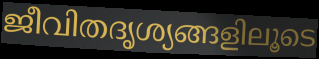
ജീവിതദൃശ്യങ്ങളിലൂടെ